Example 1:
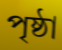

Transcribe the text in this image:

পৃষ্ঠা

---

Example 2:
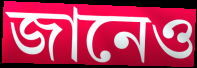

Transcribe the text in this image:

জানেও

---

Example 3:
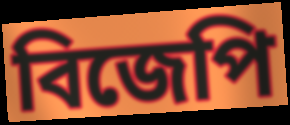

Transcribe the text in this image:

বিজেপি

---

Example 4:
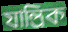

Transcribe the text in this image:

যান্ত্ৰিক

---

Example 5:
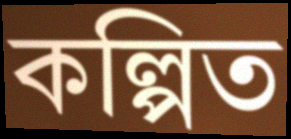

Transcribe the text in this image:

কল্পিত